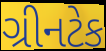
ગ્રીનટેક